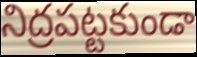
నిద్రపట్టకుండా